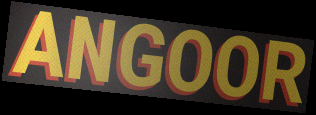
ANGOOR